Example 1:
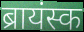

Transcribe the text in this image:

ब्रायंस्क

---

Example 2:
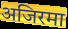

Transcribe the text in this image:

अजिरमा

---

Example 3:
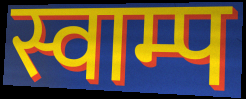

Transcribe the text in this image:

स्वाम्प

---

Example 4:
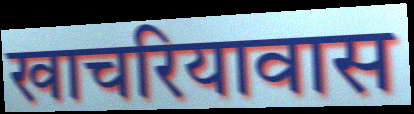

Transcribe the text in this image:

खाचरियावास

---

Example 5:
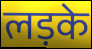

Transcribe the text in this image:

लड़के